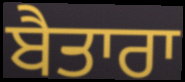
ਬੈਤਾਰਾ